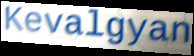
Kevalgyan